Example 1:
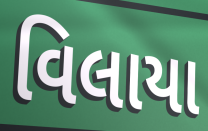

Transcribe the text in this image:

વિલાયા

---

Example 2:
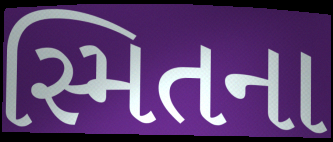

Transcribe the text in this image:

સ્મિતના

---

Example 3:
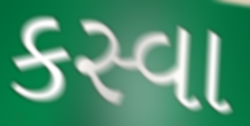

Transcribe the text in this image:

કસ્વા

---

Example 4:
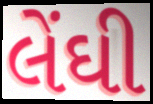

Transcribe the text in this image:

લેંઘી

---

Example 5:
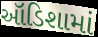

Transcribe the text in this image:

ઑડિશામાં